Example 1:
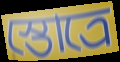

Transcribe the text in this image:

স্তোত্রে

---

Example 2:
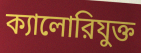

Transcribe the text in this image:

ক্যালোরিযুক্ত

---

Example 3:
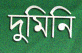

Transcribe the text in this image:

দুমিনি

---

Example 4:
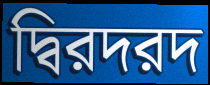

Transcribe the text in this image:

দ্বিরদরদ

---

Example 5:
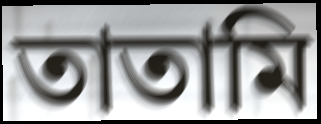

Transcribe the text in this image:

তাতামি